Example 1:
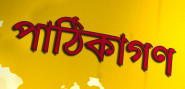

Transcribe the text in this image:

পাঠিকাগণ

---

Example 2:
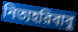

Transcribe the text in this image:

নিত্যহরিবাবু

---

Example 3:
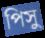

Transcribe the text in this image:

পিসু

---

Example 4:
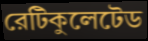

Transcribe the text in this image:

রেটিকুলেটেড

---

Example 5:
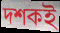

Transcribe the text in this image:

দশকই